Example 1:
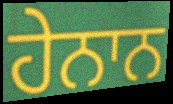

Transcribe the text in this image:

ਹੇਨਾਨ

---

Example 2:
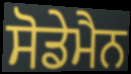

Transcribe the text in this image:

ਸੋਡੇਮੈਨ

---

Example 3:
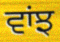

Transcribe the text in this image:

ਵਾਂਝ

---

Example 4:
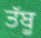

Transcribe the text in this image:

ਤੱਬੂ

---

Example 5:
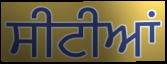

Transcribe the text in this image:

ਸੀਟੀਆਂ